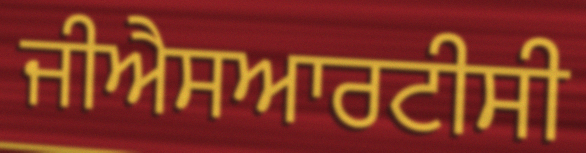
ਜੀਐਸਆਰਟੀਸੀ